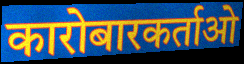
कारोबारकर्ताओ